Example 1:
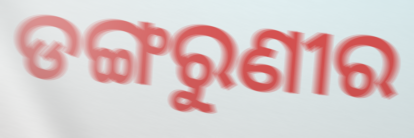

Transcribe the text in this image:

ଡଙ୍ଗରୁଣୀର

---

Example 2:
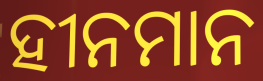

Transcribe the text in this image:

ହୀନମାନ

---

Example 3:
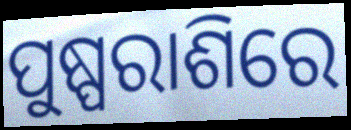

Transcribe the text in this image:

ପୁଷ୍ପରାଶିରେ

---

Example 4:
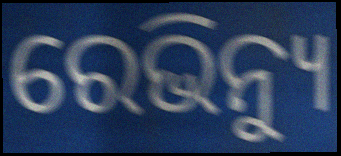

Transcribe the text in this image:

ରେଭିନ୍ୟୁ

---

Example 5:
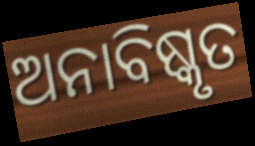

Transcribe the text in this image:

ଅନାବିଷ୍କୃତ